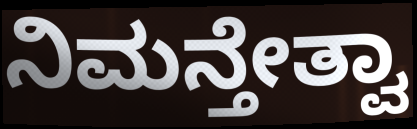
ನಿಮನ್ತೇತ್ವಾ